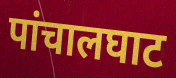
पांचालघाट